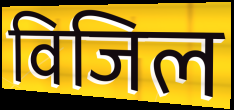
विजिल